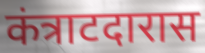
कंत्राटदारास